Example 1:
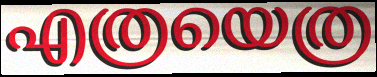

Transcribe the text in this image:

എത്രയെത്ര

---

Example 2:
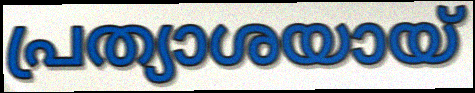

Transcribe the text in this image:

പ്രത്യാശയായ്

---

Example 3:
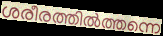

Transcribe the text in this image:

ശരീരത്തിൽത്തന്നെ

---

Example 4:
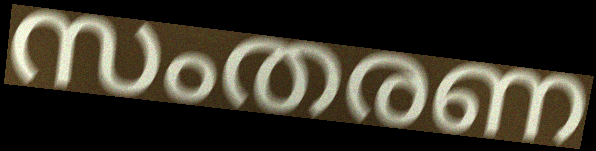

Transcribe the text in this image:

സംതരണ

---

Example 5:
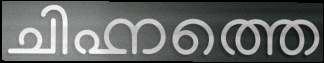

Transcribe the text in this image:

ചിഹ്നത്തെ